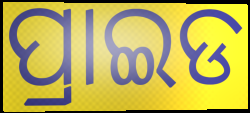
ପ୍ରାଇଡ